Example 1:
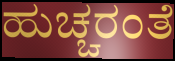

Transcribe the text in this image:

ಹುಚ್ಚರಂತೆ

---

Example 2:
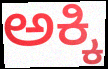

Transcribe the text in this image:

ಅಕ್ಕಿ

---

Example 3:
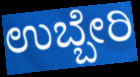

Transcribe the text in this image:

ಉಬ್ಬೇರಿ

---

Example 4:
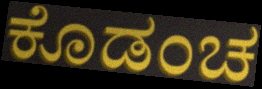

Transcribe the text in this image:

ಕೊಡಂಚ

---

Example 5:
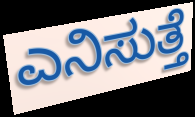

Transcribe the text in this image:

ಎನಿಸುತ್ತೆ